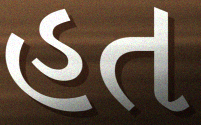
હત